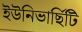
ইউনিভাৰ্ছিটি